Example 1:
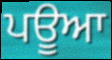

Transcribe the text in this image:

ਪਊਆ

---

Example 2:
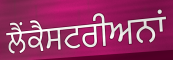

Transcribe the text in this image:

ਲੈਂਕੈਸਟਰੀਅਨਾਂ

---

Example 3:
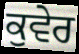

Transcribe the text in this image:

ਕੁਵੇਰ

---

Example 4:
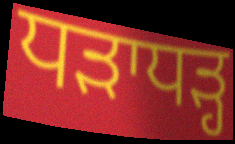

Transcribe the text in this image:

ਧੜਾਧੜ੍ਹ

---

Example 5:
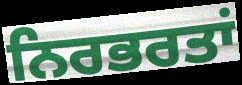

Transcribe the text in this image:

ਨਿਰਭਰਤਾਂ